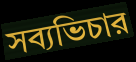
সব্যভিচার